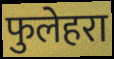
फुलेहरा